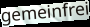
gemeinfrei